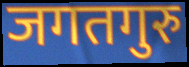
जगतगुरु